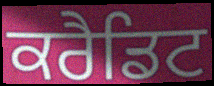
ਕਰੈਡਿਟ